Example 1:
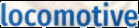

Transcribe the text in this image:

locomotive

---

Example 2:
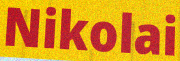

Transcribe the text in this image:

Nikolai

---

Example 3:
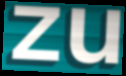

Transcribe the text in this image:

zu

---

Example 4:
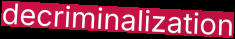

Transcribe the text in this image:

decriminalization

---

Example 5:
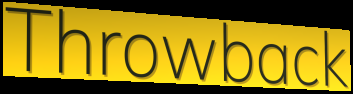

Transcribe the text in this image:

Throwback